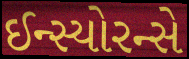
ઈન્સ્યોરન્સે